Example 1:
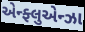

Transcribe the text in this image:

એન્ફ્લુએન્ઝા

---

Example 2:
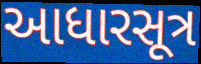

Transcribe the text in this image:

આધારસૂત્ર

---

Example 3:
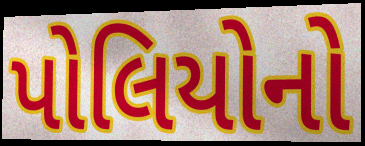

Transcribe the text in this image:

પોલિયોનો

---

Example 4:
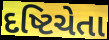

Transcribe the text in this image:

દષ્ટિચેતા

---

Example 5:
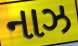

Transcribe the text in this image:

નાઝ